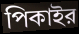
পিকাইর